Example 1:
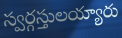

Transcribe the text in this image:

స్వర్గస్తులయ్యారు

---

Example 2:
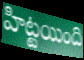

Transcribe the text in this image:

హిట్టయింది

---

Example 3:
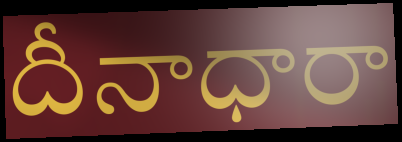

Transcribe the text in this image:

దీనాధారా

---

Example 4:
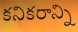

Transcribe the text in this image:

కనికరాన్ని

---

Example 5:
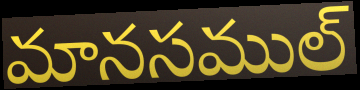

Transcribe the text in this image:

మానసముల్